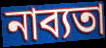
নাব্যতা